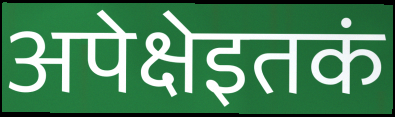
अपेक्षेइतकं